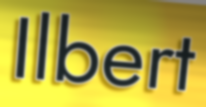
Ilbert